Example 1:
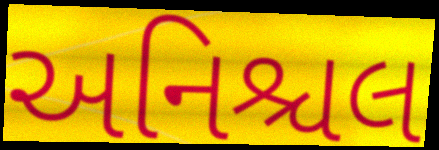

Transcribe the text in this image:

અનિશ્ચલ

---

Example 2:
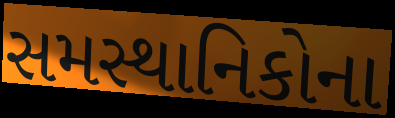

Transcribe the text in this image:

સમસ્થાનિકોના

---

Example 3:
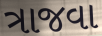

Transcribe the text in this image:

ત્રાજવા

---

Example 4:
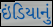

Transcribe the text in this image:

ઇંડિયાનું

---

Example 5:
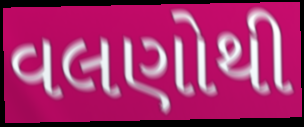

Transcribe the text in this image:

વલણોથી